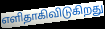
எளிதாகிவிடுகிறது